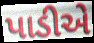
પાડીએ